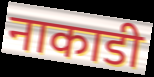
नाकाडी